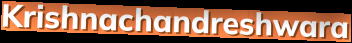
Krishnachandreshwara